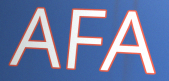
AFA